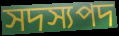
সদস্যপদ